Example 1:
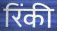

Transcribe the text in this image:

रिंकी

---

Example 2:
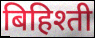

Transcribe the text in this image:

बिहिश्ती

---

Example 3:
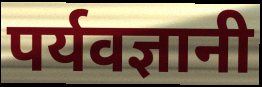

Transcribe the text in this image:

पर्यवज्ञानी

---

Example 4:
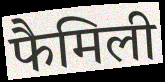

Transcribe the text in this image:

फैमिली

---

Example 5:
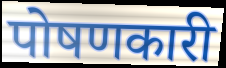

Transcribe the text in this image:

पोषणकारी